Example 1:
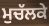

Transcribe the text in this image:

ਮੁਚੱਲਕੇ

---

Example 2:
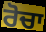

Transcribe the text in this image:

ਰੋਚਾ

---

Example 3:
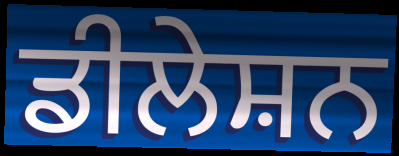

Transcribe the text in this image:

ਡੀਲੇਸ਼ਨ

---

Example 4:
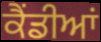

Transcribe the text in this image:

ਕੈਂਡੀਆਂ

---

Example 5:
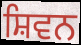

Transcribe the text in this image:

ਸ਼ਿਵਨ